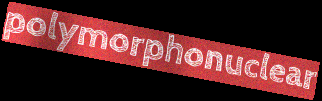
polymorphonuclear